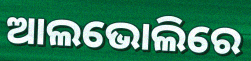
ଆଲଭୋଲିରେ